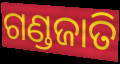
ଗଣ୍ଡଜାତି